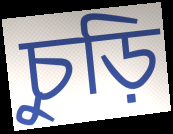
চুড়ি